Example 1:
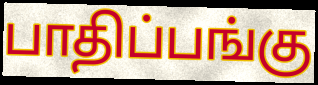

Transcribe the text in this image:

பாதிப்பங்கு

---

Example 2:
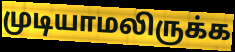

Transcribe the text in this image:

முடியாமலிருக்க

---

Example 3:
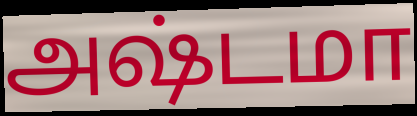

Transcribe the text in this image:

அஷ்டமா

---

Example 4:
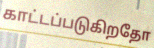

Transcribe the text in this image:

காட்டப்படுகிறதோ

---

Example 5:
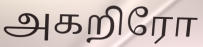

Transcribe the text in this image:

அகறிரோ